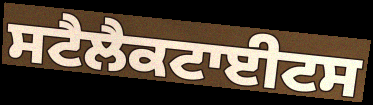
ਸਟੈਲੈਕਟਾਈਟਸ